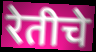
रेतीचे